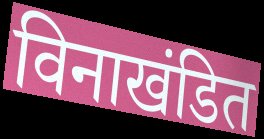
विनाखंडित